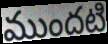
ముందటి